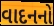
વાદનનો